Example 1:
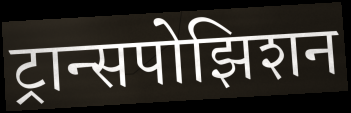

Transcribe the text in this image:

ट्रान्सपोझिशन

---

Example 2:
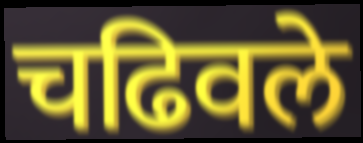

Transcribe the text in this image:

चढिवले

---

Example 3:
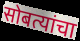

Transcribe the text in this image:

सोबत्यांचा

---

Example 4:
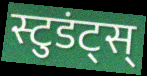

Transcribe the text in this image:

स्टुडंट्स्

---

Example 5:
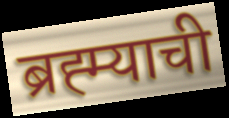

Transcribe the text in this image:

ब्रह्म्याची